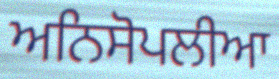
ਅਨਿਸੋਪਲੀਆ